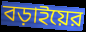
বড়াইয়ের